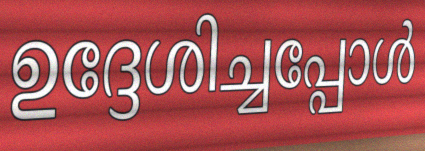
ഉദ്ദേശിച്ചപ്പോൾ